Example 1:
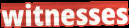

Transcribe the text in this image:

witnesses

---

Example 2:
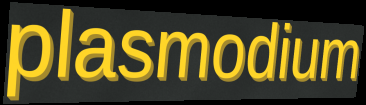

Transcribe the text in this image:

plasmodium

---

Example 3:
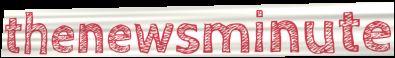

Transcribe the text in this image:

thenewsminute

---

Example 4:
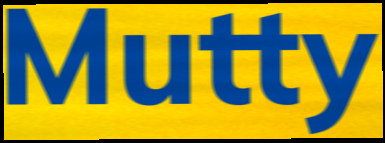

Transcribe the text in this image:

Mutty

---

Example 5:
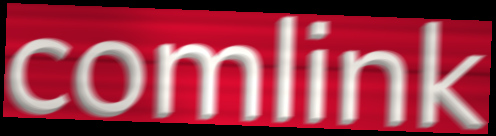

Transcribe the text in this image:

comlink